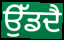
ਉੱਡਦੈ